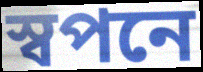
স্বপনে